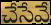
చేసేవే